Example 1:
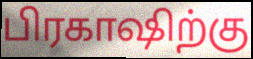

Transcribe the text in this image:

பிரகாஷிற்கு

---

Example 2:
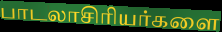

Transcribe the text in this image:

பாடலாசிரியர்களை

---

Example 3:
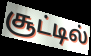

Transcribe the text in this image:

சூட்டில்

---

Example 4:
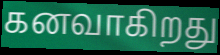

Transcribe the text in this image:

கனவாகிறது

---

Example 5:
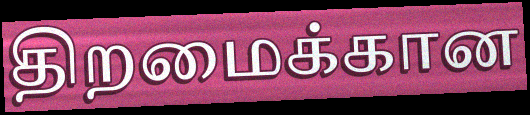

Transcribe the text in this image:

திறமைக்கான